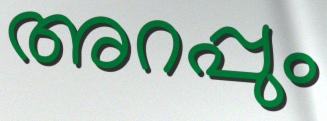
അറപ്പും